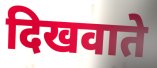
दिखवाते